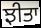
ਝੀਤਾ